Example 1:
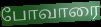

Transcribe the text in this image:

போவாரை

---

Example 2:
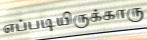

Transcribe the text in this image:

எப்படியிருக்காரு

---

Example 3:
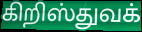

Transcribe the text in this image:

கிறிஸ்துவக்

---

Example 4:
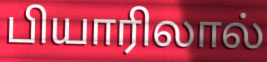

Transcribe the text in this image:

பியாரிலால்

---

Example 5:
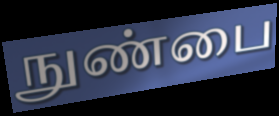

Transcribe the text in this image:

நுண்பை